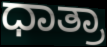
ಧಾತ್ರಾ